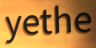
yethe